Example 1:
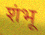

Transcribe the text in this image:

शंभू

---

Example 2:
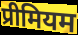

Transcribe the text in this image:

प्रीमियम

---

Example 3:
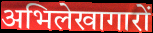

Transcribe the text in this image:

अभिलेखागारों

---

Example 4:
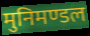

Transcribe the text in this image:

मुनिमण्डल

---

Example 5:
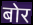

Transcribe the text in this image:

बोर